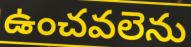
ఉంచవలెను